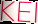
KEI